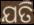
ଯତି